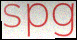
spg